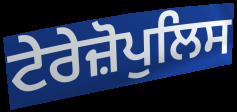
ਟੇਰੇਜ਼ੋਪੁਲਿਸ